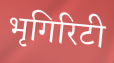
भृगिरिटी